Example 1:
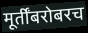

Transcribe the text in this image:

मूर्तींबरोबरच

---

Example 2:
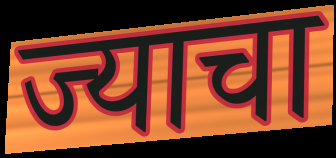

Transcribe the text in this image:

ज्याचा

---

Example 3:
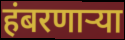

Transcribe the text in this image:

हंबरणाऱ्या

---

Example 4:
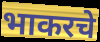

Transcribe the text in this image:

भाकरचे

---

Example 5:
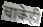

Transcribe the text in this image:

चाकेही